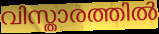
വിസ്താരത്തിൽ